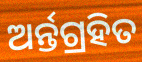
ଅର୍ନ୍ତଗ୍ରହିତ